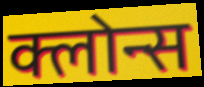
क्लोन्स